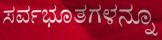
ಸರ್ವಭೂತಗಳನ್ನೂ